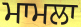
ਮਾਮਲਾ